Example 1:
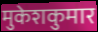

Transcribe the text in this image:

मुकेशकुमार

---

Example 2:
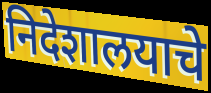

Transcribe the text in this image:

निदेशालयाचे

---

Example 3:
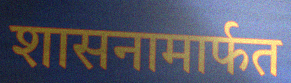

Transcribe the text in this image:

शासनामार्फत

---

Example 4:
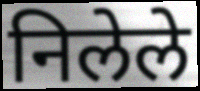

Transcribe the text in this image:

निलेले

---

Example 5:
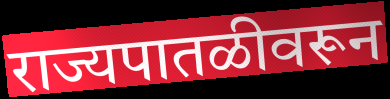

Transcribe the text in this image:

राज्यपातळीवरून